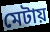
মেটায়